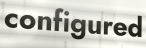
configured